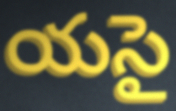
యసై